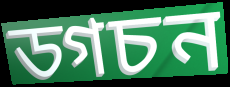
ডগচন